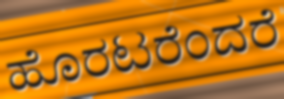
ಹೊರಟರೆಂದರೆ